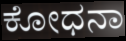
ಕೋಧನಾ